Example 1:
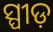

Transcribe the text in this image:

ସ୍ପୀଡ଼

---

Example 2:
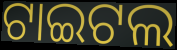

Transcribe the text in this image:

ଟାଇଟଲ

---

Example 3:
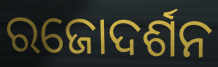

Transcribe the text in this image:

ରଜୋଦର୍ଶନ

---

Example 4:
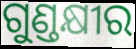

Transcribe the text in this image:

ଗୁଣ୍ଡକ୍ଷୀର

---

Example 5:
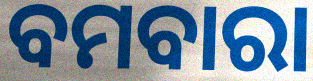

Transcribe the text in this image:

ବମବାରା